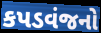
કપડવંજનો